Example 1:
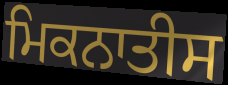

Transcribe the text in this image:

ਮਿਕਨਾਤੀਸ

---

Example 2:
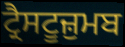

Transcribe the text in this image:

ਟ੍ਰੈਸਟੂਜ਼ੁਮਬ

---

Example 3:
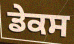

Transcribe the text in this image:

ਡੇਕਸ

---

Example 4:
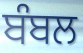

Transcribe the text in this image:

ਬੰਬਲ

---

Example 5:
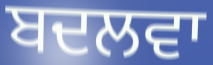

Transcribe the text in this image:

ਬਦਲਵਾ